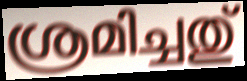
ശ്രമിച്ചതു്